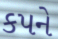
કપને